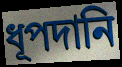
ধূপদানি